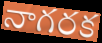
నాగరక